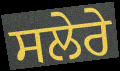
ਸਲੇਰੇ